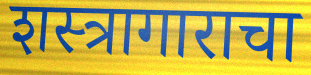
शस्त्रागाराचा